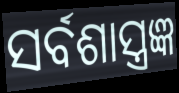
ସର୍ବଶାସ୍ତ୍ରଜ୍ଞ